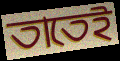
তাতেই